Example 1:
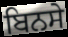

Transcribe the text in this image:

ਬਿਨਸੇ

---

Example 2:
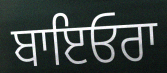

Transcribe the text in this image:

ਬਾਇਓਰਾ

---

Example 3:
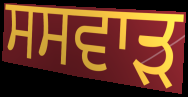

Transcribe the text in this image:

ਸਸਵਾੜ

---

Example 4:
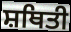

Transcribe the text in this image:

ਸ਼ਥਿਤੀ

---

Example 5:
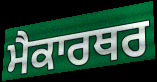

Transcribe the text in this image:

ਮੈਕਾਰਥਰ